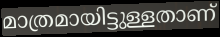
മാത്രമായിട്ടുള്ളതാണ്